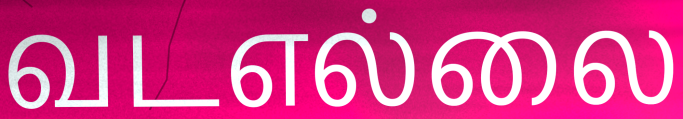
வடஎல்லை